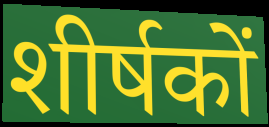
शीर्षकों